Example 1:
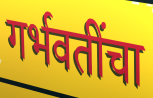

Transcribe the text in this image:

गर्भवतींचा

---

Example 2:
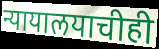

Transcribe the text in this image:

न्यायालयाचीही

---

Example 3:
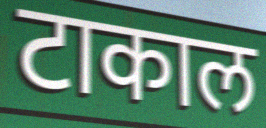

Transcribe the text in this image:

टाकाल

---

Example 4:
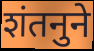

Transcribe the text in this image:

शंतनुने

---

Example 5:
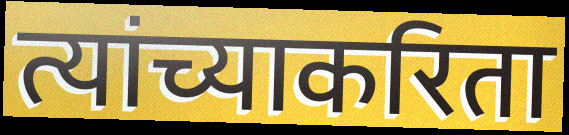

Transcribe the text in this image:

त्यांच्याकरिता